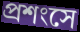
প্রশংসে